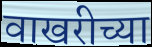
वाखरीच्या